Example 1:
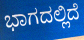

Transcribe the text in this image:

ಭಾಗದಲ್ಲಿದೆ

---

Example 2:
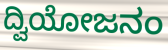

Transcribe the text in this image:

ದ್ವಿಯೋಜನಂ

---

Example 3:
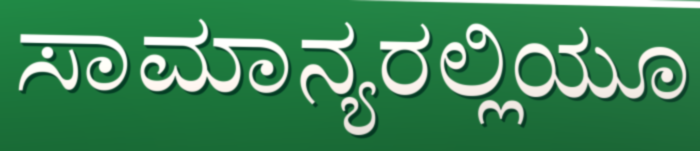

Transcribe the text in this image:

ಸಾಮಾನ್ಯರಲ್ಲಿಯೂ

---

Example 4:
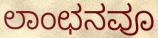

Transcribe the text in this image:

ಲಾಂಛನವೂ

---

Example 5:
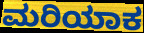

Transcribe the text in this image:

ಮರಿಯಾಕ